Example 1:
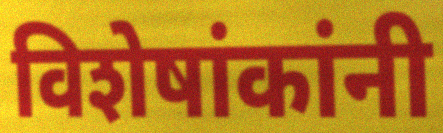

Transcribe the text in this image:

विशेषांकांनी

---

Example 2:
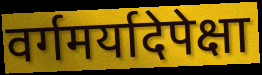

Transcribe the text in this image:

वर्गमर्यादेपेक्षा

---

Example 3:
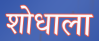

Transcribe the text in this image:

शोधाला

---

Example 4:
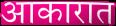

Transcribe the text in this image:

आकारात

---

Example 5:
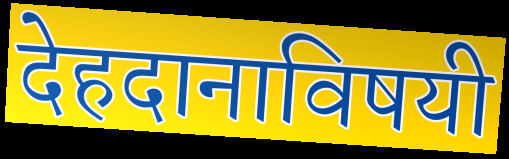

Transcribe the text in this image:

देहदानाविषयी